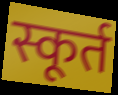
स्कूर्त